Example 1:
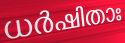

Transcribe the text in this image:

ധർഷിതാഃ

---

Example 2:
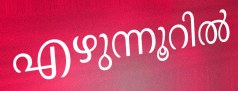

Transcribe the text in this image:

എഴുന്നൂറിൽ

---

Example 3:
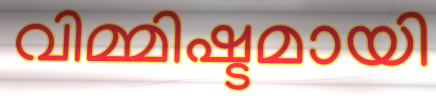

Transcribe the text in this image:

വിമ്മിഷ്ടമായി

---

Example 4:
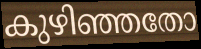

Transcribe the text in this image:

കുഴിഞ്ഞതോ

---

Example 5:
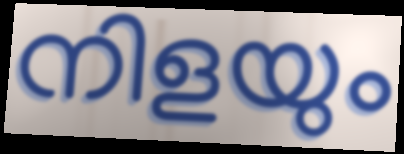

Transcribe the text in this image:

നിളയും